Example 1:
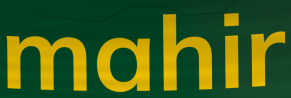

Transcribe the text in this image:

mahir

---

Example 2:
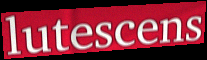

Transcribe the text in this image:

lutescens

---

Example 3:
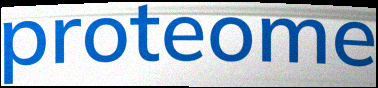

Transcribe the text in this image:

proteome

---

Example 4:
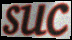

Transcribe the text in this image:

suc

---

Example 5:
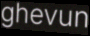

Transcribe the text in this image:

ghevun